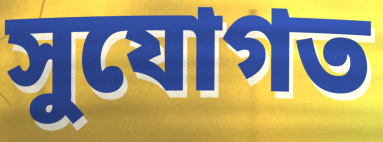
সুযোগত